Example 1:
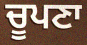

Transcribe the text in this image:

ਚੂਪਣਾ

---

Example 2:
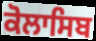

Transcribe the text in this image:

ਕੋਲਾਸਿਬ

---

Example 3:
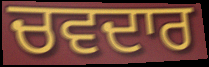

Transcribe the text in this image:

ਚਵਦਾਰ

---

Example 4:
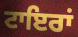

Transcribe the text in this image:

ਟਾਇਰਾਂ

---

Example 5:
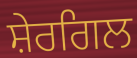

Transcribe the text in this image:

ਸ਼ੇਰਗਿਲ